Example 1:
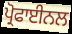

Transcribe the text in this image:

ਪ੍ਰੋਫਾਈਨਲ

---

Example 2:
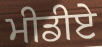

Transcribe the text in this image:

ਮੀਡੀਏ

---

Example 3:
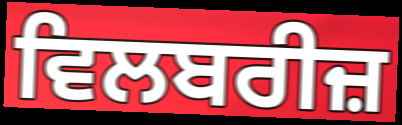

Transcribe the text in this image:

ਵਿਲਬਰੀਜ਼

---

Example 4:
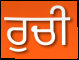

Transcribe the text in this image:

ਰੁਚੀ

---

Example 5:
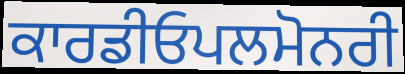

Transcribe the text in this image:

ਕਾਰਡੀਓਪਲਮੋਨਰੀ